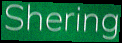
Shering